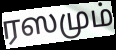
ரஸமும்